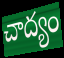
చాద్యం